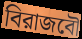
বিরাজবৌ